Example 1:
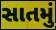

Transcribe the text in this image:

સાતમું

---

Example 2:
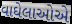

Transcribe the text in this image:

વાઘેલાઓએ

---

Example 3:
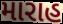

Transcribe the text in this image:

મારાહ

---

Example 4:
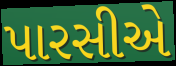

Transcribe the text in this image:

પારસીએ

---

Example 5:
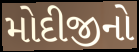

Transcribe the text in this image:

મોદીજીનો